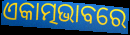
ଏକାତ୍ମଭାବରେ